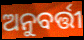
ଅନୁବର୍ତ୍ତୀ